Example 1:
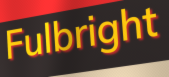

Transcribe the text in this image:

Fulbright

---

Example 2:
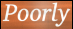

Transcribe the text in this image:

Poorly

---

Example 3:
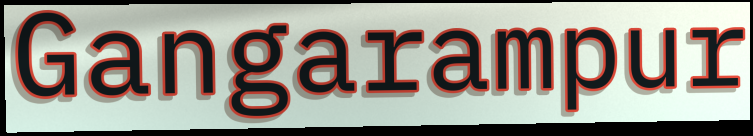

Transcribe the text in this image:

Gangarampur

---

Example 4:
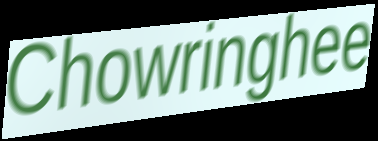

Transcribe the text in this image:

Chowringhee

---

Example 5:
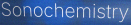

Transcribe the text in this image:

Sonochemistry